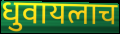
धुवायलाच